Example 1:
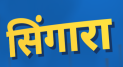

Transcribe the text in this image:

सिंगारा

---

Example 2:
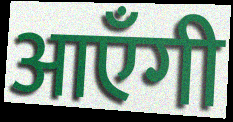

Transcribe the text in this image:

आएँगी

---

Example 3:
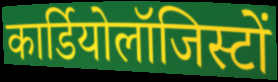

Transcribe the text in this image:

कार्डियोलॉजिस्टों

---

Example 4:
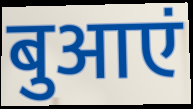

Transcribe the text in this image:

बुआएं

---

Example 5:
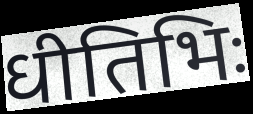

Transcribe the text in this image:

धीतिभिः